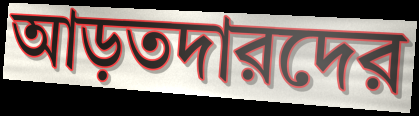
আড়তদারদের